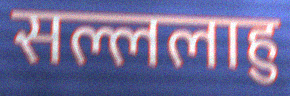
सल्ललाहु